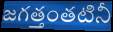
జగత్తంతటినీ